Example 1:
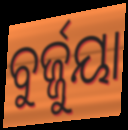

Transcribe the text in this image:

ବୁର୍ଜ୍ଜୁୟା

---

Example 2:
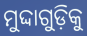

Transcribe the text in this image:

ମୁଦ୍ଦାଗୁଡ଼ିକୁ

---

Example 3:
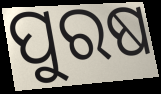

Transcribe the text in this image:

ପୁରଷ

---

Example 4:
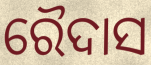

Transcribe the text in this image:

ରୈଦାସ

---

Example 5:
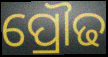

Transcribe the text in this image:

ପ୍ରୌଢ